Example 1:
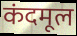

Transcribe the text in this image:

कंदमूल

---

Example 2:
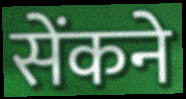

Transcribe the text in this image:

सेंकने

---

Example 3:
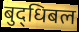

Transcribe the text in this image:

बुद्धिबल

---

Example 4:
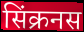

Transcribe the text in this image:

सिंक्रनस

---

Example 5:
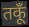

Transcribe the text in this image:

तकूँ